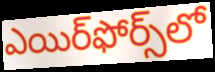
ఎయిర్‌ఫోర్స్‌లో